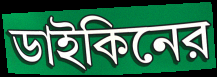
ডাইকিনের